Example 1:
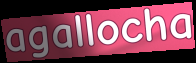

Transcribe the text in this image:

agallocha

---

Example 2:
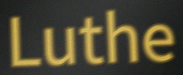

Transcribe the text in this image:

Luthe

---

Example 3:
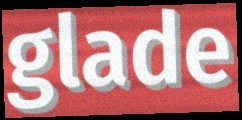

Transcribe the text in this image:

glade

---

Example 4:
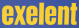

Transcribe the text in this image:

exelent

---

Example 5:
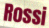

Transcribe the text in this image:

Rossi